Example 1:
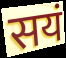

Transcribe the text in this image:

सयं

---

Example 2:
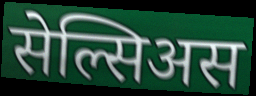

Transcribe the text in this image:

सेल्सिअस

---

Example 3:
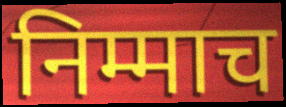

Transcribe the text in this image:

निम्माच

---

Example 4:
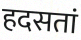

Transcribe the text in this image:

हदसतां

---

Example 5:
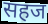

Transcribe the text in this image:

सहज